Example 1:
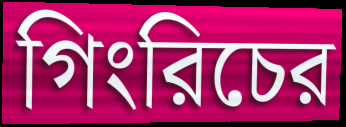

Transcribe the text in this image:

গিংরিচের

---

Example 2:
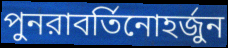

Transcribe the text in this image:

পুনরাবর্তিনোহর্জুন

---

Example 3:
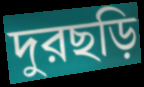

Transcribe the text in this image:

দুরছড়ি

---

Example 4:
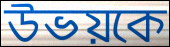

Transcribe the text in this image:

উভয়কে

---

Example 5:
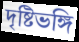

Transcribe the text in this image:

দৃষ্টিভঙ্গি